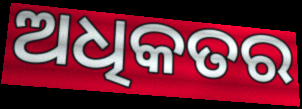
ଅଧିକତର